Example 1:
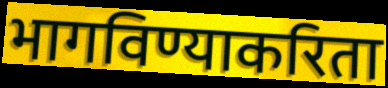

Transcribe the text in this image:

भागविण्याकरिता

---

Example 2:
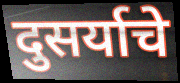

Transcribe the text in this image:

दुसर्याचे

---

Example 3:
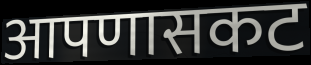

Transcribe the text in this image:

आपणासकट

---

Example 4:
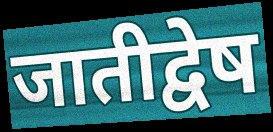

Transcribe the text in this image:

जातीद्वेष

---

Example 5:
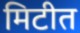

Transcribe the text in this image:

मिटीत